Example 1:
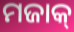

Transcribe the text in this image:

ମଜାକ୍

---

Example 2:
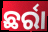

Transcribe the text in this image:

ଛର୍ରା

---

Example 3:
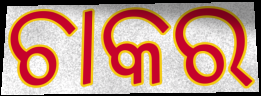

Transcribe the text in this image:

ଚାକର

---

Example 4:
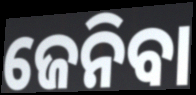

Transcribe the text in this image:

ଜେନିବା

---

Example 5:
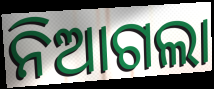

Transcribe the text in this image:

ନିଆଗଲା